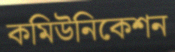
কমিউনিকেশন